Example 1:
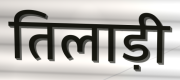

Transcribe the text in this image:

तिलाड़ी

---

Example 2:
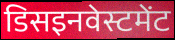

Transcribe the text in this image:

डिसइनवेस्टमेंट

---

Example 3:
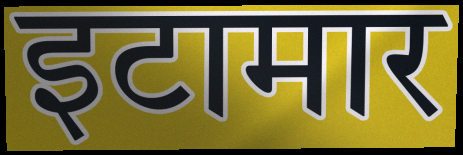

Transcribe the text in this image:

इटामार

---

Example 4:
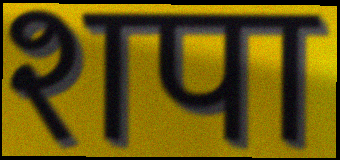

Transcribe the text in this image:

शपा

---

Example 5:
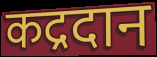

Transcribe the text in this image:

कद्रदान